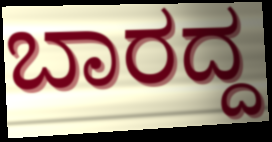
ಬಾರದ್ದ